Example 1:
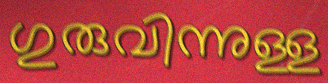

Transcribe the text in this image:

ഗുരുവിന്നുള്ള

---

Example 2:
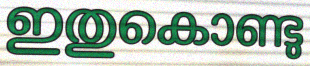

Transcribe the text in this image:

ഇതുകൊണ്ടു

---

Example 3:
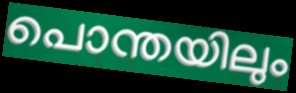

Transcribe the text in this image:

പൊന്തയിലും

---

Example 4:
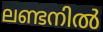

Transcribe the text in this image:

ലണ്ടനിൽ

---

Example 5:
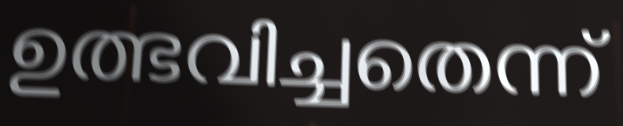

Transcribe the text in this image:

ഉത്ഭവിച്ചതെന്ന്